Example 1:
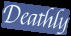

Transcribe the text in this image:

Deathly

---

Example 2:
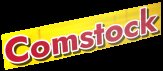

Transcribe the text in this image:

Comstock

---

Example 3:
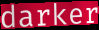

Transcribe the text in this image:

darker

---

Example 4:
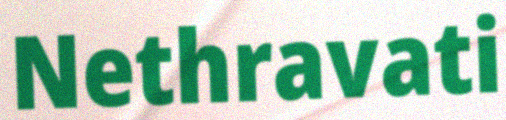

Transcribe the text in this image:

Nethravati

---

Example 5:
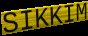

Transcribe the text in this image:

SIKKIM